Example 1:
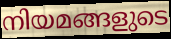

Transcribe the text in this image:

നിയമങ്ങളുടെ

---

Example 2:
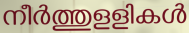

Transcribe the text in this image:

നീർത്തുളളികൾ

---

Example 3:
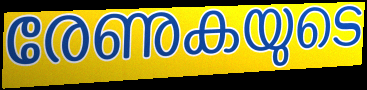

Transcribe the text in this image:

രേണുകയുടെ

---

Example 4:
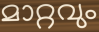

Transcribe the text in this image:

മാറ്റവും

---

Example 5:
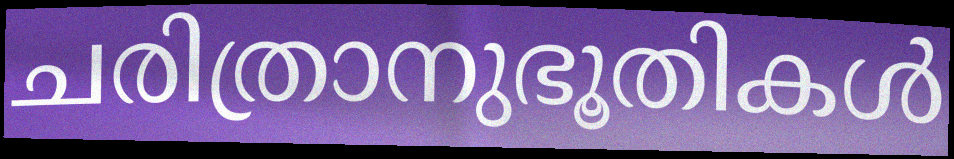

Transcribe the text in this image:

ചരിത്രാനുഭൂതികൾ